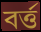
বর্ত্ত